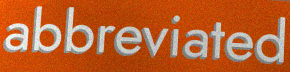
abbreviated